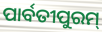
ପାର୍ବତୀପୁରମ୍